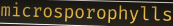
microsporophylls